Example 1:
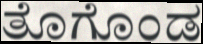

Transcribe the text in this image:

ತೊಗೊಂಡ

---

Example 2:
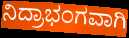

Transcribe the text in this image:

ನಿದ್ರಾಭಂಗವಾಗಿ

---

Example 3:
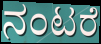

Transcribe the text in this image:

ನಂಟರೆ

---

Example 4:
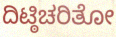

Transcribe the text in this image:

ದಿಟ್ಠಿಚರಿತೋ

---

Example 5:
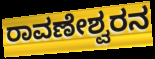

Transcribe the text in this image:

ರಾವಣೇಶ್ವರನ